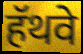
हॅथवे